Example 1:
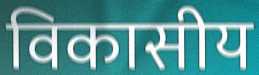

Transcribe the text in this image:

विकासीय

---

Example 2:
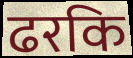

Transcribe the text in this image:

ढरकि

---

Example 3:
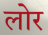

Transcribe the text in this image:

लोर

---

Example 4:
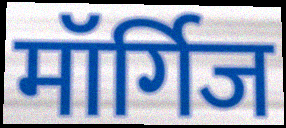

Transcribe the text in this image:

मॉर्गिज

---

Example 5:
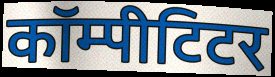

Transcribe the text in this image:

कॉम्पीटिटर